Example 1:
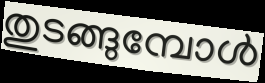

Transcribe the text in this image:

തുടങ്ങുമ്പോൾ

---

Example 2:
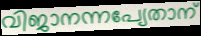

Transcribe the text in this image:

വിജാനന്നപ്യേതാന്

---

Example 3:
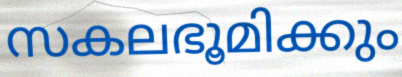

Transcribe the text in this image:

സകലഭൂമിക്കും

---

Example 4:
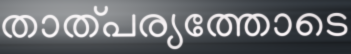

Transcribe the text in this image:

താത്പര്യത്തോടെ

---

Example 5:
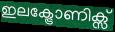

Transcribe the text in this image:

ഇലക്ട്രോണിക്സ്